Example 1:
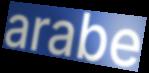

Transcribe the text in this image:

arabe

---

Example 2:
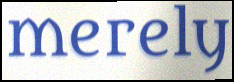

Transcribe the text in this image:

merely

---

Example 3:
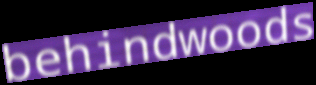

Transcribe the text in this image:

behindwoods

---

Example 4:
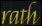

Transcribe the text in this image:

rath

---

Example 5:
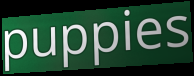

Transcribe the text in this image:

puppies